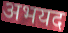
अभयद